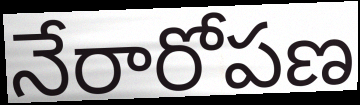
నేరారోపణ